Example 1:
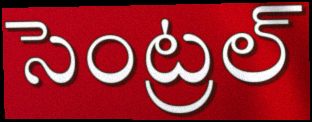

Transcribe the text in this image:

సెంట్రల్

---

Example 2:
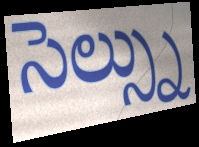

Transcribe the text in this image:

సెల్స్ను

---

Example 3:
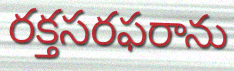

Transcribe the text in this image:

రక్తసరఫరాను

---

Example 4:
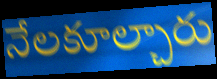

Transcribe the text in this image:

నేలకూల్చారు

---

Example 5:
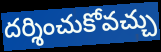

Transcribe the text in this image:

దర్శించుకోవచ్చు